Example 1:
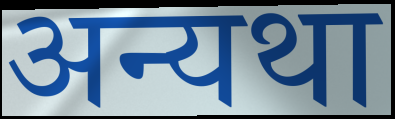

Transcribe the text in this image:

अन्यथा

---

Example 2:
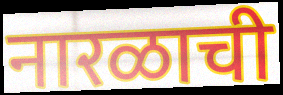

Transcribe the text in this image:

नारळाची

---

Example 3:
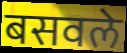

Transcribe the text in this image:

बसवले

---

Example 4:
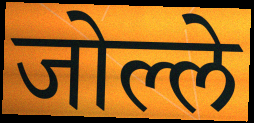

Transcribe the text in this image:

जोल्ले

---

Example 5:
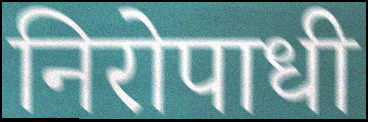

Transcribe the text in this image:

निरोपाधी